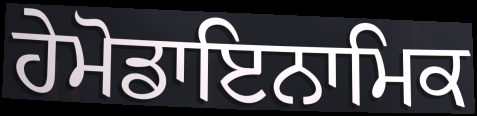
ਹੇਮੋਡਾਇਨਾਮਿਕ